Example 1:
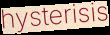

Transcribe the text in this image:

hysterisis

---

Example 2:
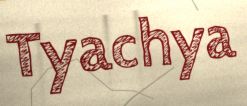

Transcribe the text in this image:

Tyachya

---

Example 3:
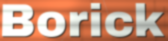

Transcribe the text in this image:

Borick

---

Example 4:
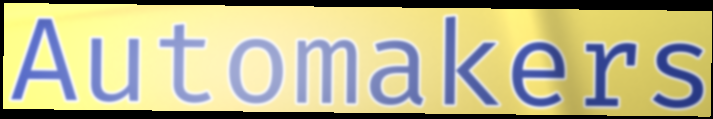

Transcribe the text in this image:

Automakers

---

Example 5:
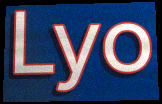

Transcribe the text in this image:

Lyo